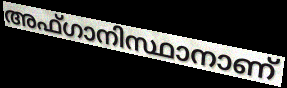
അഫ്ഗാനിസ്ഥാനാണ്